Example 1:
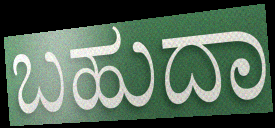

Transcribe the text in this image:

ಬಹುದಾ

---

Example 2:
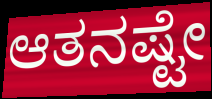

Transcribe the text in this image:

ಆತನಷ್ಟೇ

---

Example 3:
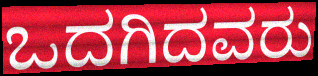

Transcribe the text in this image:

ಒದಗಿದವರು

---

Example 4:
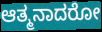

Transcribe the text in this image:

ಆತ್ಮನಾದರೋ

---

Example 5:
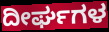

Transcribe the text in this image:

ದೀರ್ಘಗಳ